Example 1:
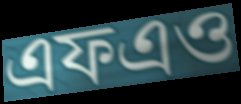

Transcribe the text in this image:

এফএও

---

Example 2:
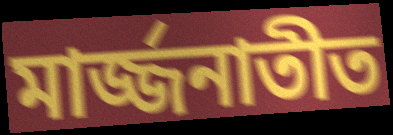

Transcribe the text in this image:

মার্জ্জনাতীত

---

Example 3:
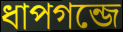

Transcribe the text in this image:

ধাপগন্জে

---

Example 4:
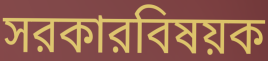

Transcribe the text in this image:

সরকারবিষয়ক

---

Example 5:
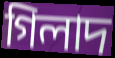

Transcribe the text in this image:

গিলাদ